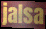
jalsa